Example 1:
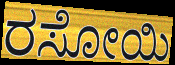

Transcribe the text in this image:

ರಸೋಯಿ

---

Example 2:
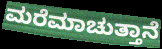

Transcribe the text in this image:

ಮರೆಮಾಚುತ್ತಾನೆ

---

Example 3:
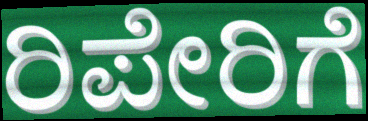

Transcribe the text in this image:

ರಿಪೇರಿಗೆ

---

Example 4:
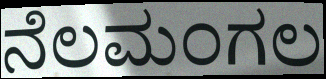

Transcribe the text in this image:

ನೆಲಮಂಗಲ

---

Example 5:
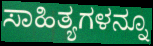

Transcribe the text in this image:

ಸಾಹಿತ್ಯಗಳನ್ನೂ